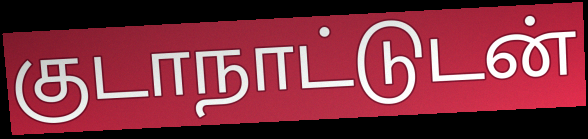
குடாநாட்டுடன்